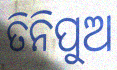
ତିନିପୁଅ